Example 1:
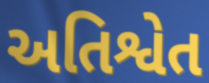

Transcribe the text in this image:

અતિશ્વેત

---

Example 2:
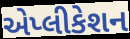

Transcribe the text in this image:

એપ્લીકેશન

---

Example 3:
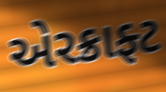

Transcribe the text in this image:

એરક્રાફ્ટ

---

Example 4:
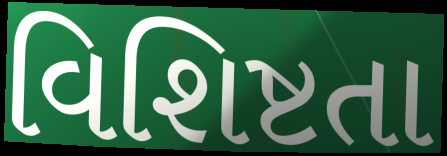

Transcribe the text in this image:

વિશિષ્ટતા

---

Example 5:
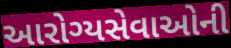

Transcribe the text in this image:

આરોગ્યસેવાઓની